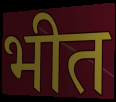
भीत